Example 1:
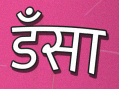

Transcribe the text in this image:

डँसा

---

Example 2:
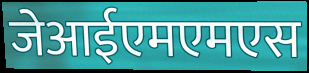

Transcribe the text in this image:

जेआईएमएमएस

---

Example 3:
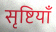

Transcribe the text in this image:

सृष्टियाँ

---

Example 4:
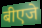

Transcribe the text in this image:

बीएजे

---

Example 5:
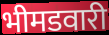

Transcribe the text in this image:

भीमडवारी